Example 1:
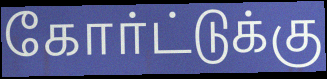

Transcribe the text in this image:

கோர்ட்டுக்கு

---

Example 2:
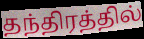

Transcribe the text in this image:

தந்திரத்தில்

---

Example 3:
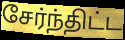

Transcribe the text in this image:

சேர்ந்திட்ட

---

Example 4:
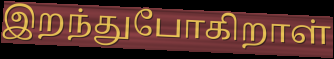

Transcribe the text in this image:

இறந்துபோகிறாள்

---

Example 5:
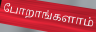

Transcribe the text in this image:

போறாங்களாம்